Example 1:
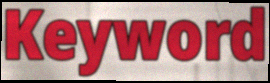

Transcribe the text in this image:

Keyword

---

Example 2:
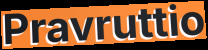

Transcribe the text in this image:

Pravruttio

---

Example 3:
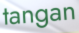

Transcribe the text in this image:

tangan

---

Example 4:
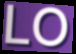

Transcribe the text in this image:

LO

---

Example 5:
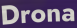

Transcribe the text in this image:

Drona